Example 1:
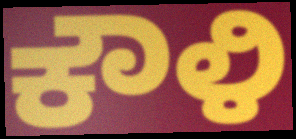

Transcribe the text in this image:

ಕೌಳಿ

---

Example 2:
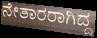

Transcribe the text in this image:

ನೇತಾರರಾಗಿದ್ದ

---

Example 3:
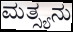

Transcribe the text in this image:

ಮತ್ಸ್ಯನು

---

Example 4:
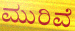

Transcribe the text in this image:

ಮುರಿವೆ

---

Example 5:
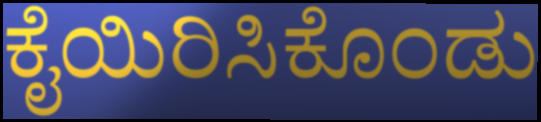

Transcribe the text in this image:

ಕೈಯಿರಿಸಿಕೊಂಡು